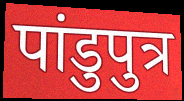
पांडुपुत्र